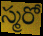
స్మరో